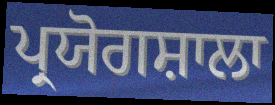
ਪ੍ਰਯੋਗਸ਼ਾਲਾ